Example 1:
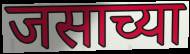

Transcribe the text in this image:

जसाच्या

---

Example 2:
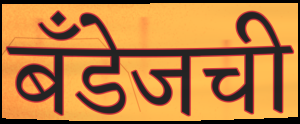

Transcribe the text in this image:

बँडेजची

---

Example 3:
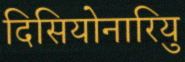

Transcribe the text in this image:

दिसियोनारियु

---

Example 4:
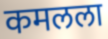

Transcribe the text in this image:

कमलला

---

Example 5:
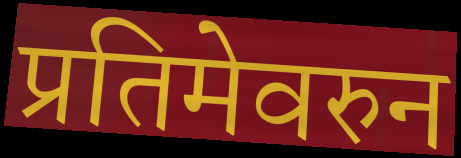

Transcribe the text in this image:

प्रतिमेवरुन